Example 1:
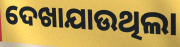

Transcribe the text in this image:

ଦେଖାଯାଉଥିଲା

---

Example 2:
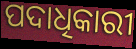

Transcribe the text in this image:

ପଦାଧିକାରୀ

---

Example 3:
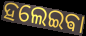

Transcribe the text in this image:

ହଲେଇଵା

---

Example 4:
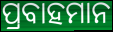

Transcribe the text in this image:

ପ୍ରବାହମାନ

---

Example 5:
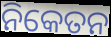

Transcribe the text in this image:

ନିକେତନ